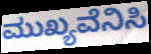
ಮುಖ್ಯವೆನಿಸಿ